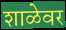
शाळेवर